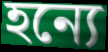
হন্যে